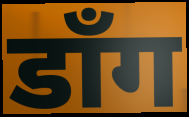
डाँग